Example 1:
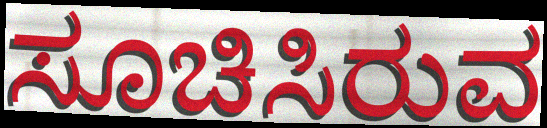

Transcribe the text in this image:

ಸೂಚಿಸಿರುವ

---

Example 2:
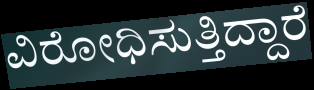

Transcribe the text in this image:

ವಿರೋಧಿಸುತ್ತಿದ್ದಾರೆ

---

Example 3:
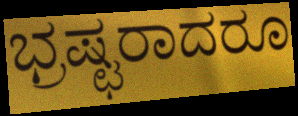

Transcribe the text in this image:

ಭ್ರಷ್ಟರಾದರೂ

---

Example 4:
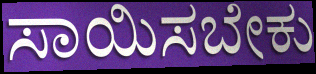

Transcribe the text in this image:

ಸಾಯಿಸಬೇಕು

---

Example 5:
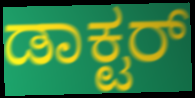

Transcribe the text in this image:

ಡಾಕ್ಟರ್